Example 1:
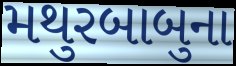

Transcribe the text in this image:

મથુરબાબુના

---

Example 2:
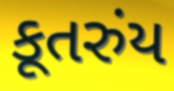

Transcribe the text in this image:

કૂતરુંય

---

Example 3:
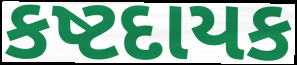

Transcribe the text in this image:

કષ્ટદાયક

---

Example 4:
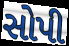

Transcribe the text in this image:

સોપી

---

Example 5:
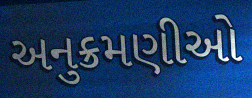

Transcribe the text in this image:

અનુક્રમણીઓ